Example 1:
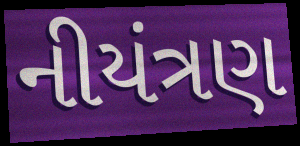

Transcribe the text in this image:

નીયંત્રણ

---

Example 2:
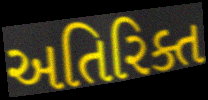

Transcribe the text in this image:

અતિરિક્ત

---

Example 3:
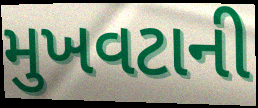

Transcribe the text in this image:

મુખવટાની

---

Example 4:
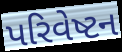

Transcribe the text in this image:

પરિવેષ્ટન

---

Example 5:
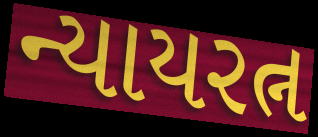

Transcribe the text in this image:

ન્યાયરત્ન